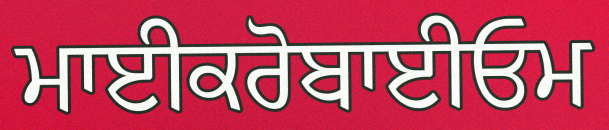
ਮਾਈਕਰੋਬਾਈਓਮ